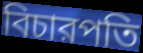
বিচারপতি